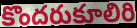
కొందరుకూలిరి